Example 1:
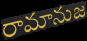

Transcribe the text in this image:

రామానుజ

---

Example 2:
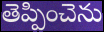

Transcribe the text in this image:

తెప్పించెను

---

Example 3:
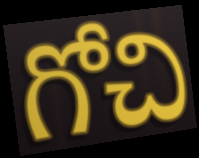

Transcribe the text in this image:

గోచి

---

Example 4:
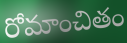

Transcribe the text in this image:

రోమాంచితం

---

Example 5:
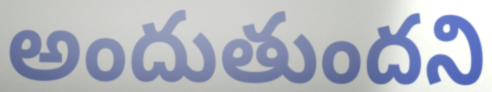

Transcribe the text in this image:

అందుతుందని